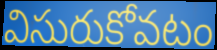
విసురుకోవటం